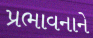
પ્રભાવનાને